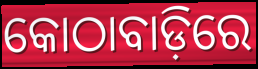
କୋଠାବାଡ଼ିରେ